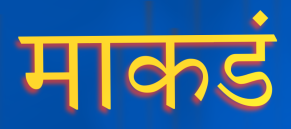
माकडं